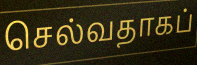
செல்வதாகப்